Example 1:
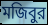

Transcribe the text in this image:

মজিবুর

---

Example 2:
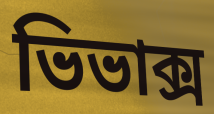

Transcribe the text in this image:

ভিভাক্স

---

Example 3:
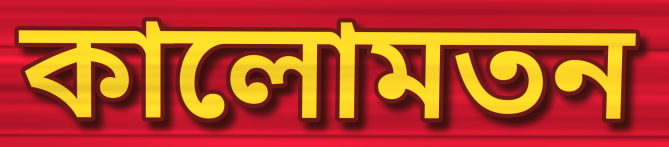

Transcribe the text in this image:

কালোমতন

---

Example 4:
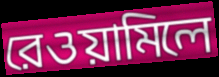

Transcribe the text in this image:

রেওয়ামিলে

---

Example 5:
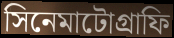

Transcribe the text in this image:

সিনেমাটোগ্রাফি